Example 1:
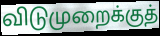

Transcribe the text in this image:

விடுமுறைக்குத்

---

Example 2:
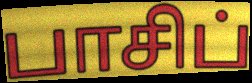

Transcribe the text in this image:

பாசிப்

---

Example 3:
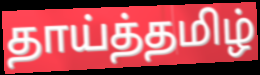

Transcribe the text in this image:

தாய்த்தமிழ்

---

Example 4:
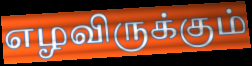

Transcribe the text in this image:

எழவிருக்கும்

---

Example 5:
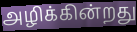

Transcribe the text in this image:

அழிக்கின்றது